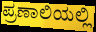
ಪ್ರಣಾಲಿಯಲ್ಲಿ